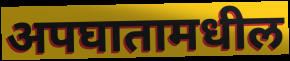
अपघातामधील